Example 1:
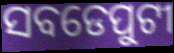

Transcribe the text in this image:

ସବଡେପୁଟୀ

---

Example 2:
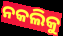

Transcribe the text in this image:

ନକଲିକୁ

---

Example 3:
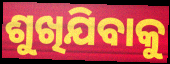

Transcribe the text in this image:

ଶୁଖିଯିବାକୁ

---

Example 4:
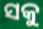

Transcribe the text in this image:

ସକୁ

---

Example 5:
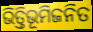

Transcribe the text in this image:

ଭିତ୍ତିଭୂମିଜନିତ